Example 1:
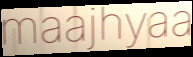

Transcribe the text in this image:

maajhyaa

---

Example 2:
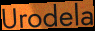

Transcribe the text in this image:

Urodela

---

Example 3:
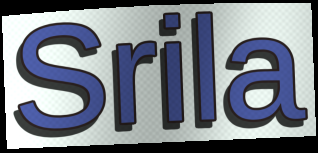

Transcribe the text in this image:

Srila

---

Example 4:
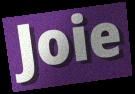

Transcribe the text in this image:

Joie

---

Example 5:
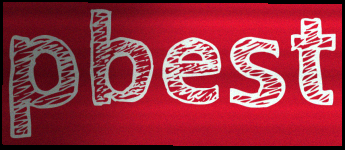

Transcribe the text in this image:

pbest